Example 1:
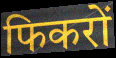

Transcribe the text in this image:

फिकरों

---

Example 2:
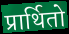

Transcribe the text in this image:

प्रार्थितो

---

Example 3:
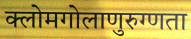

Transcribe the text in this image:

क्लोमगोलाणुरुग्णता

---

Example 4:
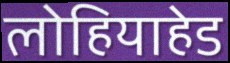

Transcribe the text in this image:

लोहियाहेड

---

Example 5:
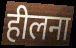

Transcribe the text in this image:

हीलना